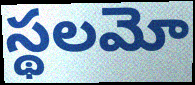
స్థలమో